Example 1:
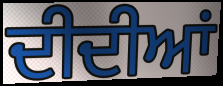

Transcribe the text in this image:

ਦੀਦੀਆਂ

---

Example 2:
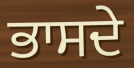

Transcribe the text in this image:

ਭਾਸਦੇ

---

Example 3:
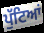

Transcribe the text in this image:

ਪੁੱਟਿਆਂ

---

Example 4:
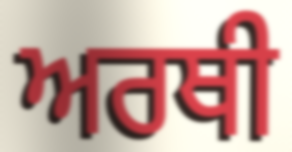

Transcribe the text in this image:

ਅਰਥੀ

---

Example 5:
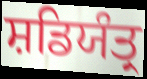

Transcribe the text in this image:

ਸ਼ਡਿਯੰਤ੍ਰ